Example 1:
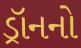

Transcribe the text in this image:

ડ્રૉનનો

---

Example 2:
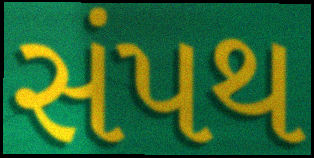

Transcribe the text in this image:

સંપથ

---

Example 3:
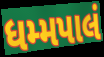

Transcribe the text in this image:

ધમ્મપાલં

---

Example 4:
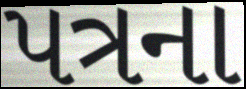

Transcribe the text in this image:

પત્રના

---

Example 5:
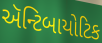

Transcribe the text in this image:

ઍન્ટિબાયોટિક